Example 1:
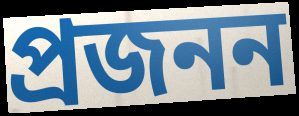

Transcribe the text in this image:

প্রজনন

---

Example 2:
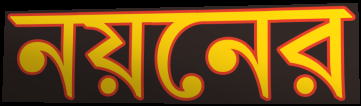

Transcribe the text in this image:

নয়নের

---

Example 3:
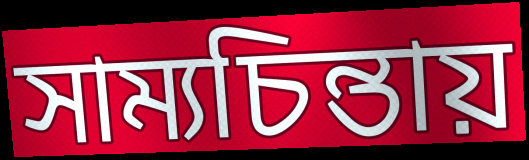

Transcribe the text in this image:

সাম্যচিন্তায়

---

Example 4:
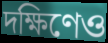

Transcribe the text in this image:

দক্ষিণেও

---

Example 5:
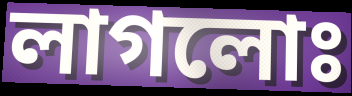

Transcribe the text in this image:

লাগলোঃ